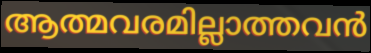
ആത്മവരമില്ലാത്തവൻ